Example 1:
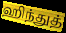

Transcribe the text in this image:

ஹிந்துத்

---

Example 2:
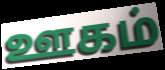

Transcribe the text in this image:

ஊகம்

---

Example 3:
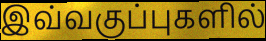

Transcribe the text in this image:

இவ்வகுப்புகளில்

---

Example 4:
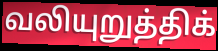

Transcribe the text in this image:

வலியுறுத்திக்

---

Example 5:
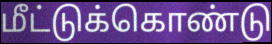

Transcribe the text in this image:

மீட்டுக்கொண்டு